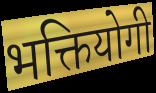
भक्तियोगी